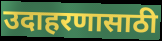
उदाहरणासाठी